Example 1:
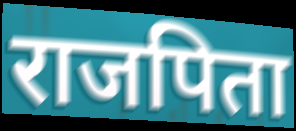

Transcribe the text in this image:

राजपिता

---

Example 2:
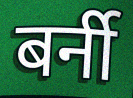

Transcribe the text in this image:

बर्नी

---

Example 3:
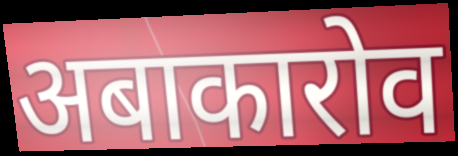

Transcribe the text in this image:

अबाकारोव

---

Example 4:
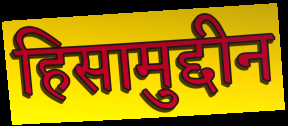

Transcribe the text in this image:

हिसामुद्दीन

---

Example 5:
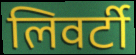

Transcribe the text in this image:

लिवर्टी